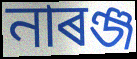
নাৰঞ্জ